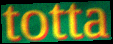
totta